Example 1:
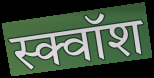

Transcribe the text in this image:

स्क्वॉश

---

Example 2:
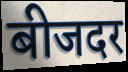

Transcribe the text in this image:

बीजदर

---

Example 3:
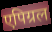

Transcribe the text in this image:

एपिग्रल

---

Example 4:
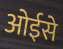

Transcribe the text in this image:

ओईसे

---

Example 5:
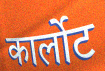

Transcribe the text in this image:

कार्लोट